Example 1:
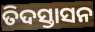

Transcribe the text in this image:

ତିଦସ୍ତାସନ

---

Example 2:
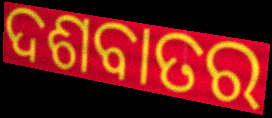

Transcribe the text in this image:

ଦଶବାତର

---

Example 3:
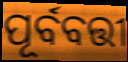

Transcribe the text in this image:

ପୂର୍ବବତ୍ତୀ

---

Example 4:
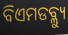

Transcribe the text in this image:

ବିଏମଡବ୍ଲ୍ୟୁ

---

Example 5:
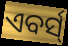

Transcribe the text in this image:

ଏବର୍ସ୍